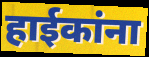
हाईकांना